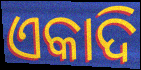
ଏକାଦି